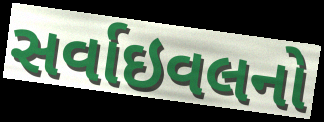
સર્વાઇવલનો